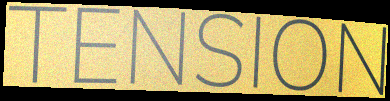
TENSION